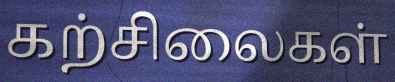
கற்சிலைகள்